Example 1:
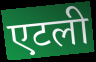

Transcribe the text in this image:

एटली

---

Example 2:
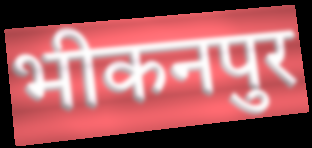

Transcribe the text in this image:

भीकनपुर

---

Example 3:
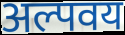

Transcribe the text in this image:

अल्पवय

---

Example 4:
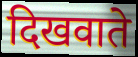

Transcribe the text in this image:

दिखवाते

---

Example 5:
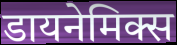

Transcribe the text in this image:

डायनेमिक्स